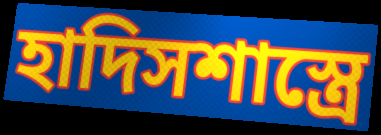
হাদিসশাস্ত্রে